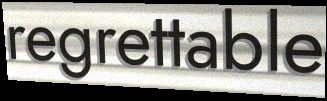
regrettable